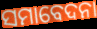
ସମାବେଦନା